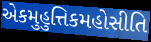
એકમુહુત્તિકમહોસીતિ